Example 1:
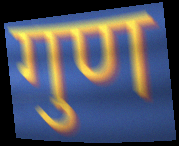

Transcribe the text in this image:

गुण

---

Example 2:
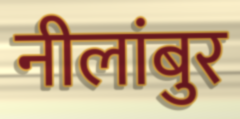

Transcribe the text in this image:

नीलांबुर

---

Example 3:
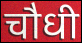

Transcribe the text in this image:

चौधी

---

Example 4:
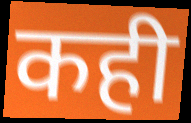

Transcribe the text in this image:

कही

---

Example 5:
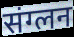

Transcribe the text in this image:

संग्लन